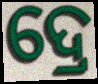
ଦ୍ରେ